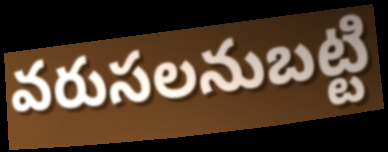
వరుసలనుబట్టి